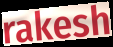
rakesh